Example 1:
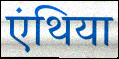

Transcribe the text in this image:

एंथिया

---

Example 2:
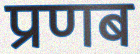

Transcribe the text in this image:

प्रणब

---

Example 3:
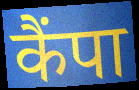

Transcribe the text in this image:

कैंपा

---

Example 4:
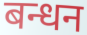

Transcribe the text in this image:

बन्धन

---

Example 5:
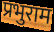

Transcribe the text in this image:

प्रभुराम